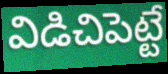
విడిచిపెట్టే